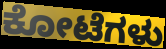
ಕೋಟೆಗಳು